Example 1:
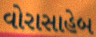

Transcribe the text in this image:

વોરાસાહેબ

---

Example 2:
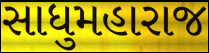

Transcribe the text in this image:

સાધુમહારાજ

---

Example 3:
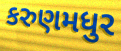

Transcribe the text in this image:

કરુણમધુર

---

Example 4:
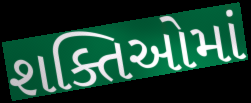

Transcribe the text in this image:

શક્તિઓમાં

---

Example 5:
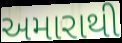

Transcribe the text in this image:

અમારાથી